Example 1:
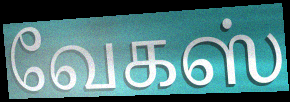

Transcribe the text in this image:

வேகஸ்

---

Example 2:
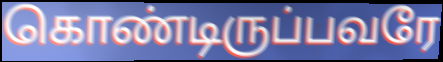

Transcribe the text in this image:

கொண்டிருப்பவரே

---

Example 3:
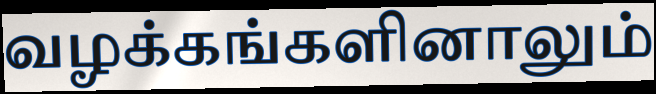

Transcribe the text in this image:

வழக்கங்களினாலும்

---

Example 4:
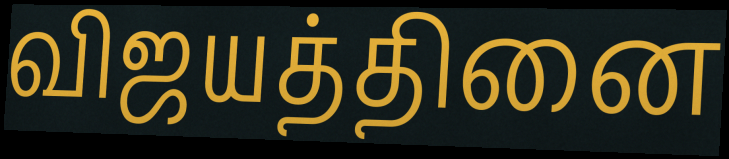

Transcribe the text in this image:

விஜயத்தினை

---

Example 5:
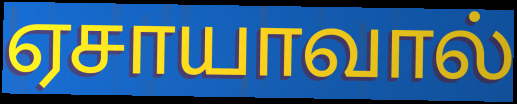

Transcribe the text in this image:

ஏசாயாவால்